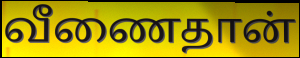
வீணைதான்